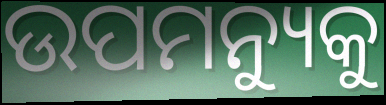
ଉପମନ୍ୟୁକୁ